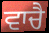
ਵਾਚੈ